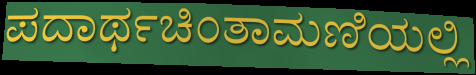
ಪದಾರ್ಥಚಿಂತಾಮಣಿಯಲ್ಲಿ